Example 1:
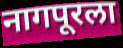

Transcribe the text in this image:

नागपूरला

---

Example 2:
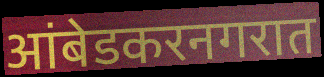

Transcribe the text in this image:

आंबेडकरनगरात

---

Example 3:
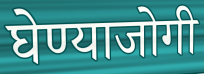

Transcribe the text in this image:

घेण्याजोगी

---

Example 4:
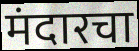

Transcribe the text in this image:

मंदारचा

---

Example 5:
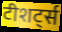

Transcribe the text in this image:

टीशर्ट्स